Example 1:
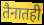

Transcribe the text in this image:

तैनातही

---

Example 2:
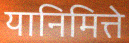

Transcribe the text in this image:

यानिमित्ते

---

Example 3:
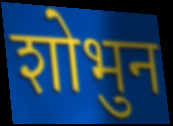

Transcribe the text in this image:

शोभुन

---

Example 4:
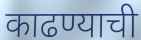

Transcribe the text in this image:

काढण्याची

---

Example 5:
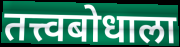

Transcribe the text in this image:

तत्त्वबोधाला